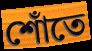
শোঁতে